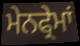
ਮੇਨਫ੍ਰੇਮਾਂ